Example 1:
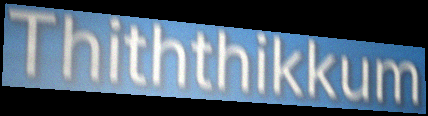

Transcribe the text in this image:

Thiththikkum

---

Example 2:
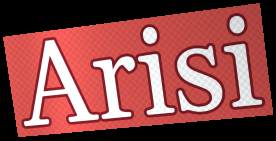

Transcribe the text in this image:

Arisi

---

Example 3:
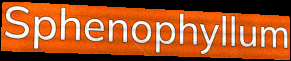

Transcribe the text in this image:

Sphenophyllum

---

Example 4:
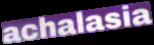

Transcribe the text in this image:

achalasia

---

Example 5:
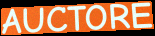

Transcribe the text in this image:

AUCTORE